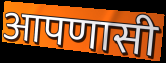
आपणासी